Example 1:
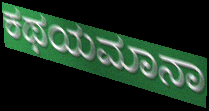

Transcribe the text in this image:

ಕಥಯಮಾನಾ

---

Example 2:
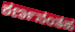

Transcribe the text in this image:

ಕರ್ಣನಂತಹ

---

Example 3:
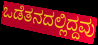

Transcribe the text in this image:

ಒಡೆತನದಲ್ಲಿದ್ದವು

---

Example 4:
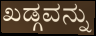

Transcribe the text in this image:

ಖಡ್ಗವನ್ನು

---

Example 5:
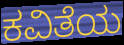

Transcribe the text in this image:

ಕವಿತೆಯ